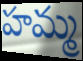
హమ్మ